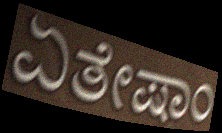
ಏತೇಷಾಂ